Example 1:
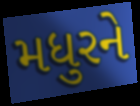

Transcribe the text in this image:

મધુરને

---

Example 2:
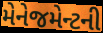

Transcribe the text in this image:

મેનેજમેન્ટની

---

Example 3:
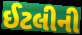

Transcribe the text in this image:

ઈટલીની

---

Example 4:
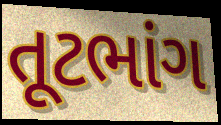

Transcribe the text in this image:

તૂટભાંગ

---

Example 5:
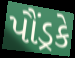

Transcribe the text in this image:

પૌંડ્રકે